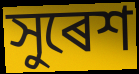
সুৰেশ